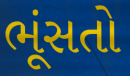
ભૂંસતો